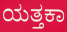
ಯತ್ತಕಾ